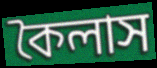
কৈলাস